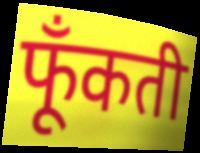
फूँकती